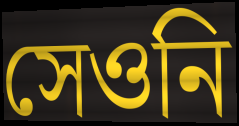
সেওনি